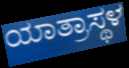
ಯಾತ್ರಾಸ್ಥಳ